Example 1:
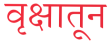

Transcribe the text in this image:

वृक्षातून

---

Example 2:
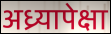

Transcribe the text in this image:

अध्र्यापेक्षा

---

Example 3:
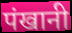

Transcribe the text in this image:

पंखानी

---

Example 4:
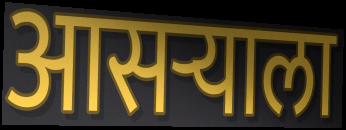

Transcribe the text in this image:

आसऱ्याला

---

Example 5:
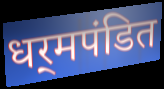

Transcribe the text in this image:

धर्मपंडित